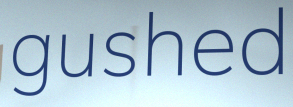
gushed